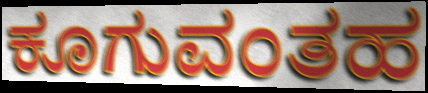
ಕೂಗುವಂತಹ